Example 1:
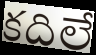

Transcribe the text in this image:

కదిలే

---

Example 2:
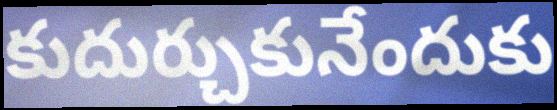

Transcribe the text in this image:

కుదుర్చుకునేందుకు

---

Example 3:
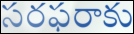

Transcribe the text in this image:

సరఫరాకు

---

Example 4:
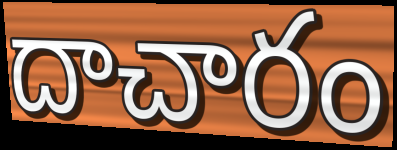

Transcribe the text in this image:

దాచారం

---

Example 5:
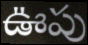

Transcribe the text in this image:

ఊపు